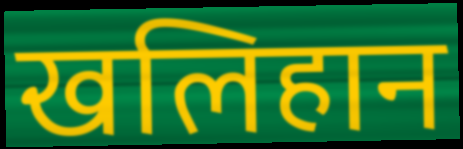
खलिहान